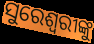
ସୁରେଶ୍ୱରୀଙ୍କୁ